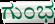
ಗುಂಭ